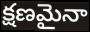
క్షణమైనా